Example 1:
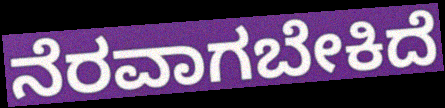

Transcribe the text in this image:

ನೆರವಾಗಬೇಕಿದೆ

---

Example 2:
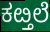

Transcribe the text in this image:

ಕೞ್ತಲೆ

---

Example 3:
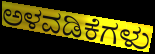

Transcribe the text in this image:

ಅಳವಡಿಕೆಗಳು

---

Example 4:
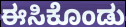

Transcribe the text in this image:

ಈಸಿಕೊಂಡು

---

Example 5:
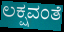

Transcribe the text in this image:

ಲಕ್ಷವಂತೆ